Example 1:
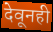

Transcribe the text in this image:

देवूनही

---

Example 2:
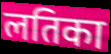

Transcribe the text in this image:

लतिका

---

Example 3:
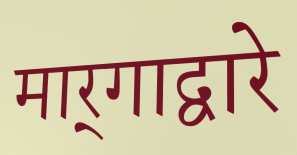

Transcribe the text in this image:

मार्गाद्वारे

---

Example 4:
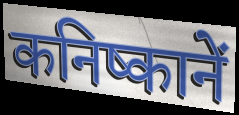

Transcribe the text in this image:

कनिष्कानें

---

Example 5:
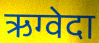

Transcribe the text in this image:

ऋग्वेदा